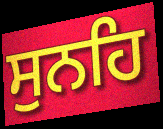
ਸੁਨਹਿ